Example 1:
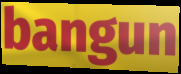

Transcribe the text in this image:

bangun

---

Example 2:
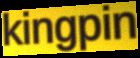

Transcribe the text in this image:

kingpin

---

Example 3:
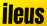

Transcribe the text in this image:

ileus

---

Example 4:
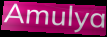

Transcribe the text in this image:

Amulya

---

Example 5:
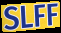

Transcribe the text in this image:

SLFF